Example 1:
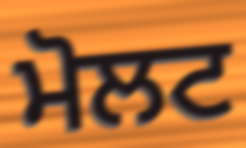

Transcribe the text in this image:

ਮੋਲਟ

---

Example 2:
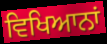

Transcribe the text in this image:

ਵਿਖਿਆਨਾਂ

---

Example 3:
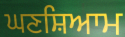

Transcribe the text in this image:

ਘਣਸ਼ਿਆਮ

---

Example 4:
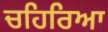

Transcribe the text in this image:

ਚਹਿਰਿਆ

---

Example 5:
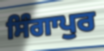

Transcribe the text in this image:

ਸਿੰਗਾਪੁਰ